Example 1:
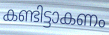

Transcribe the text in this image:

കണ്ടിട്ടാകണം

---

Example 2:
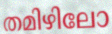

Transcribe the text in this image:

തമിഴിലോ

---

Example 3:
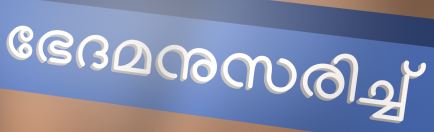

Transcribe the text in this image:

ഭേദമനുസരിച്ച്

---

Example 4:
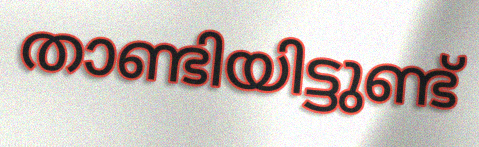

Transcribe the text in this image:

താണ്ടിയിട്ടുണ്ട്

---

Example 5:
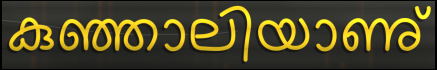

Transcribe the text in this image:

കുഞ്ഞാലിയാണു്